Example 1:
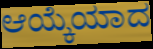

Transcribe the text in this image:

ಆಯ್ಕೆಯಾದ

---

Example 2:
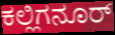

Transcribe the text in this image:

ಕಲ್ಲಿಗನೂರ್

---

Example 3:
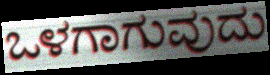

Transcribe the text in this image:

ಒಳಗಾಗುವುದು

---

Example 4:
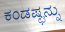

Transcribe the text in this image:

ಕಂಡಷ್ಟನ್ನು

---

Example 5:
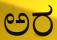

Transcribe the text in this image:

ಅರ